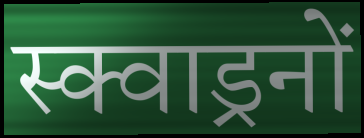
स्क्वाड्रनों